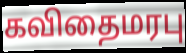
கவிதைமரபு